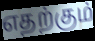
எதற்கும்